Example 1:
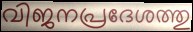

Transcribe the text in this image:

വിജനപ്രദേശത്തു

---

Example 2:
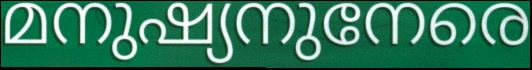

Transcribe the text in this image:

മനുഷ്യനുനേരെ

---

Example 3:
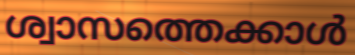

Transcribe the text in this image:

ശ്വാസത്തെക്കാൾ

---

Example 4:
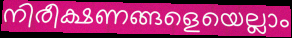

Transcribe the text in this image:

നിരീക്ഷണങ്ങളെയെല്ലാം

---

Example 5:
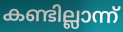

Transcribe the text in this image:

കണ്ടില്ലാന്ന്